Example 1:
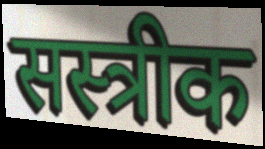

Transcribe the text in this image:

सस्त्रीक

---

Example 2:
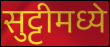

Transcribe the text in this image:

सुट्टीमध्ये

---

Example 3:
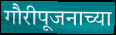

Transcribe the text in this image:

गौरीपूजनाच्या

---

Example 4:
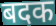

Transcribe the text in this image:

बदक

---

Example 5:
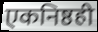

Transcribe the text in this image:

एकनिष्ठही